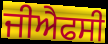
ਜੀਐਫਸੀ